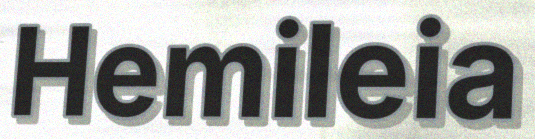
Hemileia